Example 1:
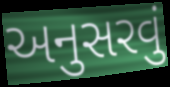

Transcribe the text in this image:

અનુસરવું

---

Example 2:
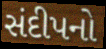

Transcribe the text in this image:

સંદીપનો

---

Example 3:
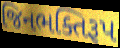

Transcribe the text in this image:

જિનભક્તિરૂપ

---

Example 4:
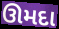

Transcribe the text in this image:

ઊમદા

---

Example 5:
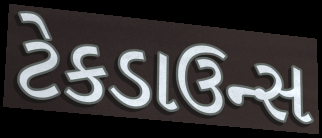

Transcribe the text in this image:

ટેકડાઉન્સ